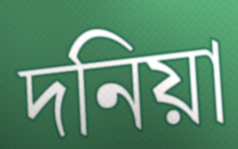
দনিয়া